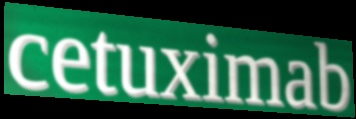
cetuximab